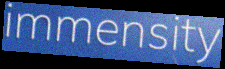
immensity